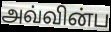
அவ்வின்ப